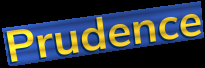
Prudence